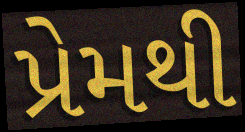
પ્રેમથી